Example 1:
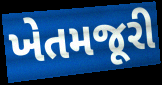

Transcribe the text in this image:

ખેતમજૂરી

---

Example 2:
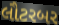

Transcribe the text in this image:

લૌટરબર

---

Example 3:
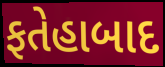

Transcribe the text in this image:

ફતેહાબાદ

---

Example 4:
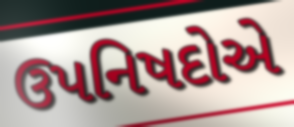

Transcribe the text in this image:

ઉપનિષદોએ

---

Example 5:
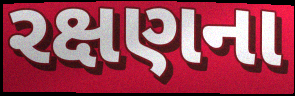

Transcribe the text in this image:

રક્ષણના